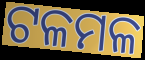
ଟଳମଳ